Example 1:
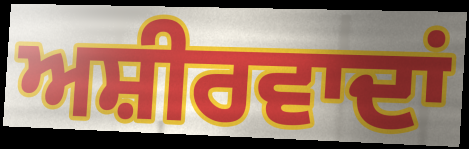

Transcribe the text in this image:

ਅਸ਼ੀਰਵਾਦਾਂ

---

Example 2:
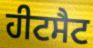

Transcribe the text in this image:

ਹੀਟਸੈਟ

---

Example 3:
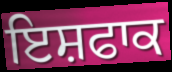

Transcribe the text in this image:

ਇਸ਼ਫਾਕ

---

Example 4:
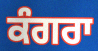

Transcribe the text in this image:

ਕੰਗਰਾ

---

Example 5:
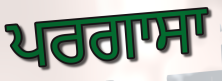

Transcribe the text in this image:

ਪਰਗਾਸਾ